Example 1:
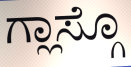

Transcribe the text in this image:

ಗ್ಲಾಸ್ಗೊ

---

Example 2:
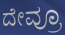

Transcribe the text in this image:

ದೇವ್ರೂ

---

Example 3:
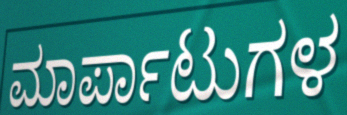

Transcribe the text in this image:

ಮಾರ್ಪಾಟುಗಳ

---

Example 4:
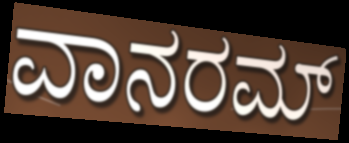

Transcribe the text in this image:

ವಾನರಮ್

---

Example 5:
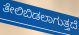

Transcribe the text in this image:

ತೇಲಿಬಿಡಲಾಗುತ್ತದೆ